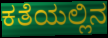
ಕತೆಯಲ್ಲಿನ